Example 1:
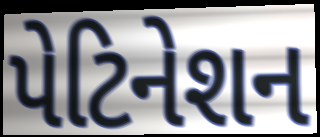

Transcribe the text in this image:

પેટિનેશન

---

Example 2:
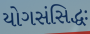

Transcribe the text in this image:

યોગસંસિદ્ધઃ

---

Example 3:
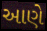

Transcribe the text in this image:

આણે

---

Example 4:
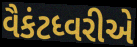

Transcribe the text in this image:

વૈકંટધ્વરીએ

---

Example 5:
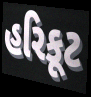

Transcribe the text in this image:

હરિકૂટ